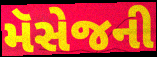
મૅસેજની